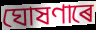
ঘোষণাৰে